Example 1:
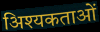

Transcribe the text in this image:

अिश्यकताओं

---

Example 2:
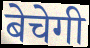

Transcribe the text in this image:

बेचेगी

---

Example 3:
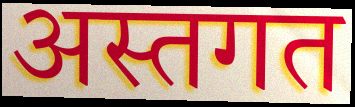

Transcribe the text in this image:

अस्तगत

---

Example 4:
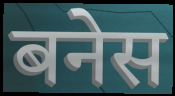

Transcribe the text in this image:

बनेस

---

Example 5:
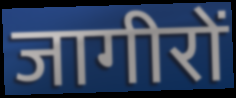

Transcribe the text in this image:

जागीरों